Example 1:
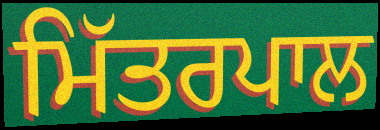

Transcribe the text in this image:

ਮਿੱਤਰਪਾਲ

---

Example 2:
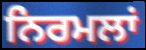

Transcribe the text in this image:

ਨਿਰਮਲਾਂ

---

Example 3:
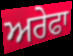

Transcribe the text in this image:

ਅਰੇਫਾ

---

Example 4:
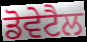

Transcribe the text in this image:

ਡੋਵੇਟੈਲ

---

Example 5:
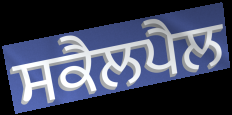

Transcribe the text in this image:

ਸਕੈਲਪੈਲ